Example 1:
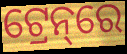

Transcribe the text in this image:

ଟ୍ରେନ୍‌ରେ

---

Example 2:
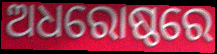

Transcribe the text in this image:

ଅଧରୋଷ୍ଠରେ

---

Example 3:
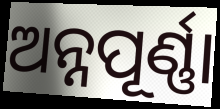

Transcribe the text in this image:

ଅନ୍ନପୂର୍ଣ୍ଣା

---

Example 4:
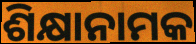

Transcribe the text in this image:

ଶିକ୍ଷାନାମକ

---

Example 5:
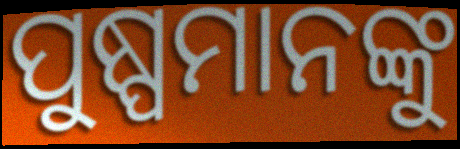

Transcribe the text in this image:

ପୁଷ୍ପମାନଙ୍କୁ